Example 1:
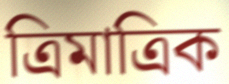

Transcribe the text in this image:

ত্রিমাত্রিক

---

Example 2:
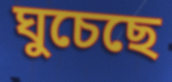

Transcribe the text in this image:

ঘুচেছে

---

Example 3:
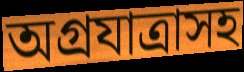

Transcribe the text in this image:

অগ্রযাত্রাসহ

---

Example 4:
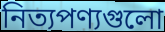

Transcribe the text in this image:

নিত্যপণ্যগুলো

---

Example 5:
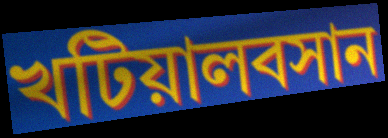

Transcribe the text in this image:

খটিয়ালবসান